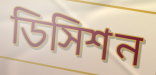
ডিসিশন